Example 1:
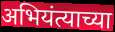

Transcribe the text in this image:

अभियंत्याच्या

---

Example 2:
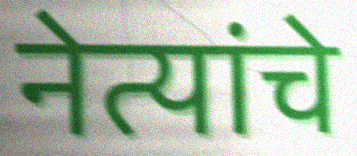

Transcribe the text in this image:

नेत्यांचे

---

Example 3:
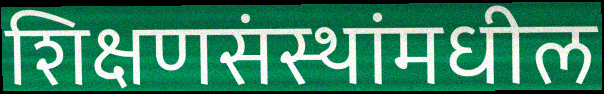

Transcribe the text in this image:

शिक्षणसंस्थांमधील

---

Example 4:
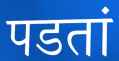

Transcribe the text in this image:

पडतां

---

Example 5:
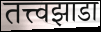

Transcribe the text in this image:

तत्त्वझाडा